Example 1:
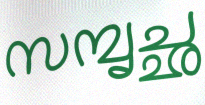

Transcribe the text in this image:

സമ്പൃച്ഛ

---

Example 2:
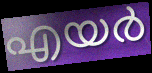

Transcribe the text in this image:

എയർ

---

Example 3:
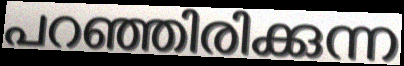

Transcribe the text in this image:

പറഞ്ഞിരിക്കുന്ന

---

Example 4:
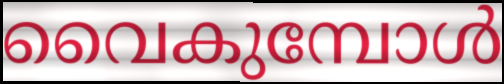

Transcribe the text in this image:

വൈകുമ്പോൾ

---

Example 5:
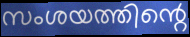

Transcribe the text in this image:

സംശയത്തിന്റെ